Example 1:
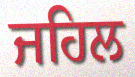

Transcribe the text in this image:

ਜਹਿਲ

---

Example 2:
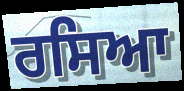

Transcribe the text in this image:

ਰਸਿਆ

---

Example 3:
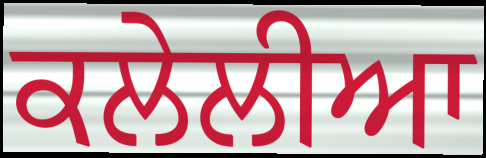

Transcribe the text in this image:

ਕਲੇਲੀਆ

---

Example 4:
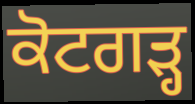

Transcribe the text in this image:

ਕੋਟਗੜ੍ਹ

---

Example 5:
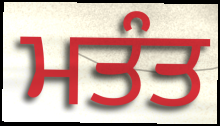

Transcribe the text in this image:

ਮਤੰਤ